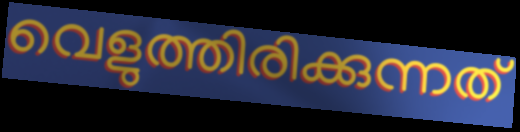
വെളുത്തിരിക്കുന്നത്